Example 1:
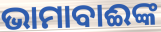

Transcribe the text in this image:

ଭାମାବାଈଙ୍କ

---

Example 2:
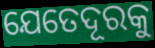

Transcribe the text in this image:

ଯେତେଦୂରକୁ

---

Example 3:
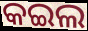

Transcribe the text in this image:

କଇଲ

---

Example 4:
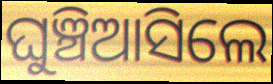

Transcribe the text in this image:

ଘୁଞ୍ଚିଆସିଲେ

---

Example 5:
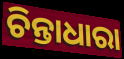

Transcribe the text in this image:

ଚିନ୍ତାଧାରା